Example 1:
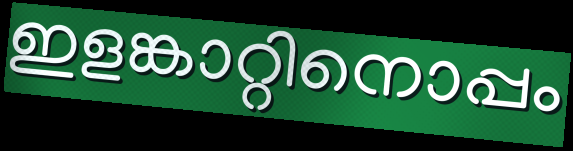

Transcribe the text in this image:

ഇളങ്കാറ്റിനൊപ്പം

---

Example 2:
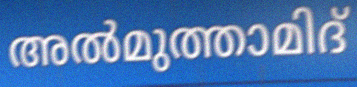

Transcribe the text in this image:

അൽമുത്താമിദ്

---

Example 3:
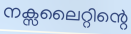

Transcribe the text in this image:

നക്സലൈറ്റിന്റെ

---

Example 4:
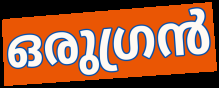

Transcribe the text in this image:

ഒരുഗ്രൻ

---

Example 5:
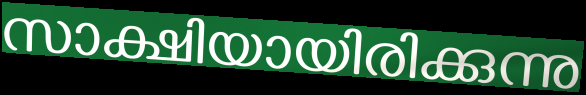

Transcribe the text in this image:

സാക്ഷിയായിരിക്കുന്നു